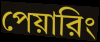
পেয়ারিং